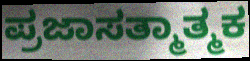
ಪ್ರಜಾಸತ್ಮಾತ್ಮಕ